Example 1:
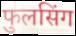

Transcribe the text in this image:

फुलसिंग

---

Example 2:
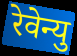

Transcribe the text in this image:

रेवेन्यु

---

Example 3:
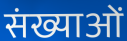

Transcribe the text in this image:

संख्याओं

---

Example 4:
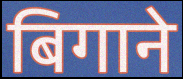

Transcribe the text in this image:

बिगाने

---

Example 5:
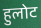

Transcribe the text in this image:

हुलोट